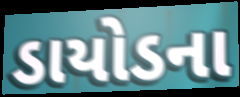
ડાયોડના